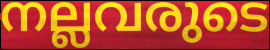
നല്ലവരുടെ